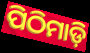
ପିଠିମାଡ଼ି